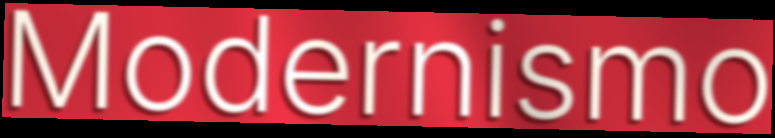
Modernismo